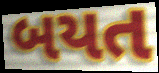
બયત